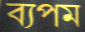
ব্যপম